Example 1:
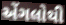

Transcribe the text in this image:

એંગલોથી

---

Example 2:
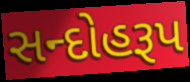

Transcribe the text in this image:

સન્દોહરૂપ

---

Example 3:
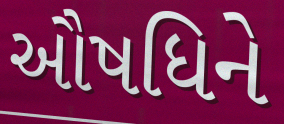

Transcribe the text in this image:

ઔષધિને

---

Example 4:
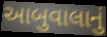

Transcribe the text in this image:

આબુવાલાનું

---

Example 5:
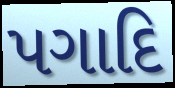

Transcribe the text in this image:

પગાદિ